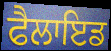
ਫੈਲਾਇਡ